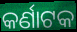
କର୍ଣାଟକ